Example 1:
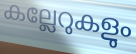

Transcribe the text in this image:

കല്ലേറുകളും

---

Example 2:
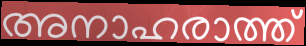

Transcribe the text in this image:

അനാഹരാത്ത്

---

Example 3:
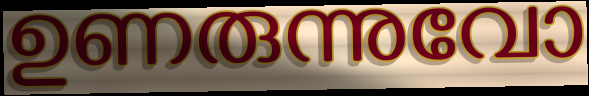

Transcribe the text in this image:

ഉണരുന്നുവോ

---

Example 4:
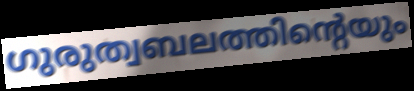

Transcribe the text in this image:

ഗുരുത്വബലത്തിന്റെയും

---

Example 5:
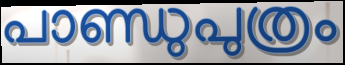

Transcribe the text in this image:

പാണ്ഡുപുത്രം